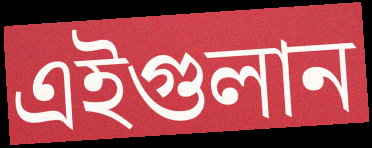
এইগুলান